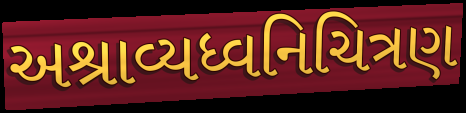
અશ્રાવ્યધ્વનિચિત્રણ